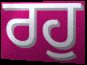
ਰਹੁ